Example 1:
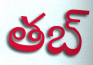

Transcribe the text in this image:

తబ్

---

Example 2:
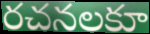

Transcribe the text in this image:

రచనలకూ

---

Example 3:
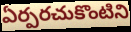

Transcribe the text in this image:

ఏర్పరచుకొంటిని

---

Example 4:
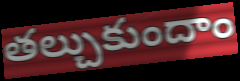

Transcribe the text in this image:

తల్చుకుందాం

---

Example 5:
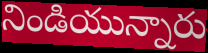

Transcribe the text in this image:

నిండియున్నారు